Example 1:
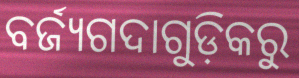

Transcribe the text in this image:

ବର୍ଜ୍ୟଗଦାଗୁଡ଼ିକରୁ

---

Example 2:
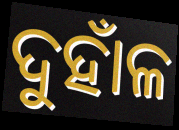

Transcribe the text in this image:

ଦୁହାଁଳ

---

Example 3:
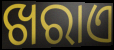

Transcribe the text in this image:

ଖରାଏ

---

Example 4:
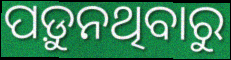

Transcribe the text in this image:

ପଡ଼ୁନଥିବାରୁ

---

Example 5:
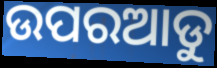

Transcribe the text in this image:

ଉପରଆଡୁ